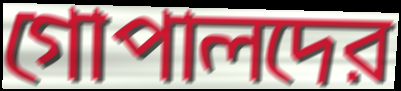
গোপালদের